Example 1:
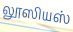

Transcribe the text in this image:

லூஸியஸ்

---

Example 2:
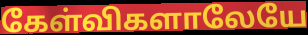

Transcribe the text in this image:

கேள்விகளாலேயே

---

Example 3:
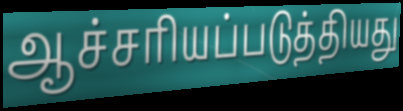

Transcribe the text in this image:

ஆச்சரியப்படுத்தியது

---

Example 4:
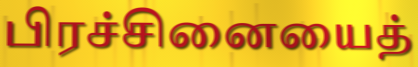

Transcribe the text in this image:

பிரச்சினையைத்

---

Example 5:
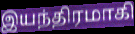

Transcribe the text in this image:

இயந்திரமாகி